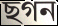
ছগন